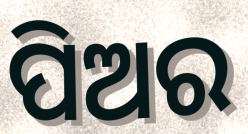
ପିଅର